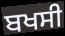
ਬਖਸੀ